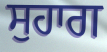
ਸੁਹਾਗ